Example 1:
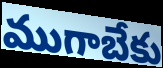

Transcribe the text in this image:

ముగాబేకు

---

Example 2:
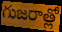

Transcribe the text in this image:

గుజరాత్లో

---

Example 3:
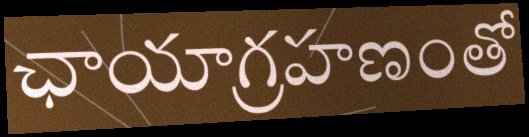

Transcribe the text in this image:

ఛాయాగ్రహణంతో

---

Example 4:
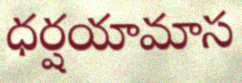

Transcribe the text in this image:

ధర్షయామాస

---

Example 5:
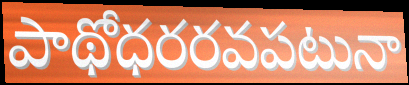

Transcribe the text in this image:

పాథోధరరవపటునా